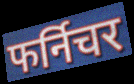
फर्निचर